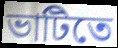
ভাটিতে